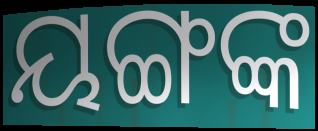
ୟଙ୍ଗଙ୍କ